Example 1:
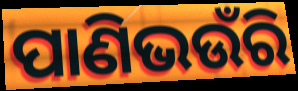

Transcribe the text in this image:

ପାଣିଭଉଁରି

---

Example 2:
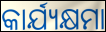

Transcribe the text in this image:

କାର୍ଯ୍ୟକ୍ଷମା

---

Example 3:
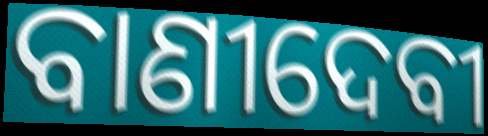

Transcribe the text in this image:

ବାଣୀଦେବୀ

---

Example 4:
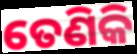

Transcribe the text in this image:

ତେଣିକି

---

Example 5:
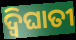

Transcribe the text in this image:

ଦ୍ବିଘାତୀ